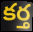
కర్త